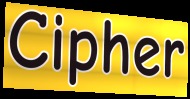
Cipher